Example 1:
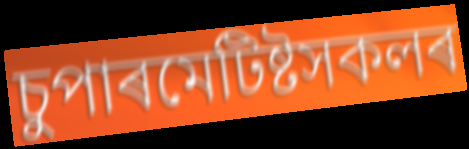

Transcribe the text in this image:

চুপাৰমেটিষ্টসকলৰ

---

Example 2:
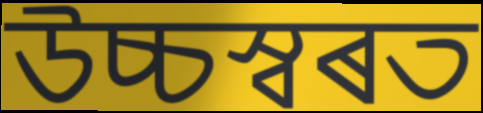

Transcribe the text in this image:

উচ্চস্বৰত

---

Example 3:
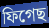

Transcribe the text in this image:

ফিগেছ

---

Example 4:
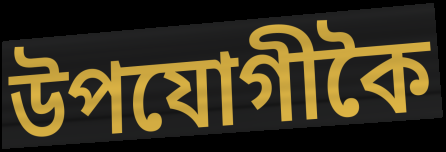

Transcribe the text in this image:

উপযোগীকৈ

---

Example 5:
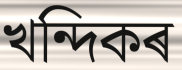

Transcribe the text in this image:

খন্দিকৰ